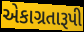
એકાગ્રતારૂપી